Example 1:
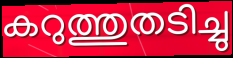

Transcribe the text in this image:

കറുത്തുതടിച്ചു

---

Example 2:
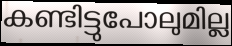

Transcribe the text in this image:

കണ്ടിട്ടുപോലുമില്ല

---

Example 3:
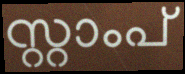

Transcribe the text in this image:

സ്റ്റാംപ്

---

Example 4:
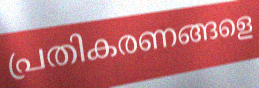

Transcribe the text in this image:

പ്രതികരണങ്ങളെ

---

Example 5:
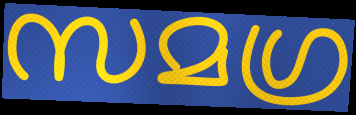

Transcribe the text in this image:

സമഗ്ര